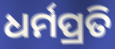
ଧର୍ମପ୍ରତି